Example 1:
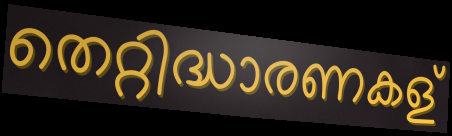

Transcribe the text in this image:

തെറ്റിദ്ധാരണകള്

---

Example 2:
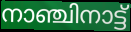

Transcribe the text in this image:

നാഞ്ചിനാട്ട്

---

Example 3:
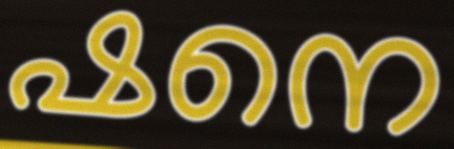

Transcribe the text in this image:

ഷനെ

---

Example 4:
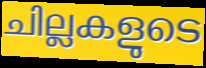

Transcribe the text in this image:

ചില്ലകളുടെ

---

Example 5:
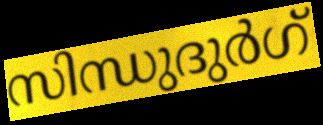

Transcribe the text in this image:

സിന്ധുദുർഗ്